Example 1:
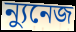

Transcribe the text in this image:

ন্যুনেজ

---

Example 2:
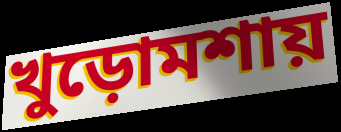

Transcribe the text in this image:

খুড়োমশায়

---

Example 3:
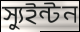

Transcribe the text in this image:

স্যুইন্টন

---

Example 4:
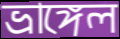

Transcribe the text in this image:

ভ্রাঙ্গেল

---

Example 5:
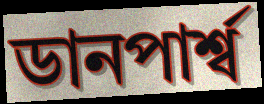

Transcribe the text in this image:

ডানপার্শ্ব